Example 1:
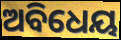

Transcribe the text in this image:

ଅବିଧେୟ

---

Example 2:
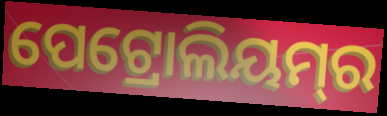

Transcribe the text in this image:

ପେଟ୍ରୋଲିୟମ୍‌ର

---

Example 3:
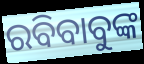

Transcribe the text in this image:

ରବିବାବୁଙ୍କ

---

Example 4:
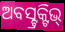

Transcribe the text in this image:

ଅବସ୍ଟ୍ରକ୍ଟିଭ୍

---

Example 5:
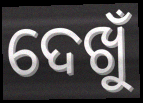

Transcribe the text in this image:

ଦେଖୁଁ